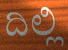
ದಿಲ್ಲಿ